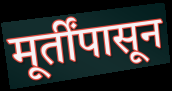
मूर्तींपासून